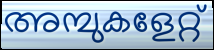
അമ്പുകളേറ്റ്